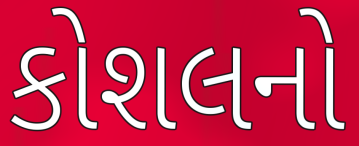
કોશલનો